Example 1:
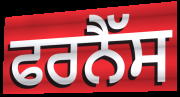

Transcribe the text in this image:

ਫਰਨੈੱਸ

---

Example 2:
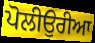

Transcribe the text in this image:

ਪੋਲੀਉਰੀਆ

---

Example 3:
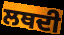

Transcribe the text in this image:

ਲਥਦੀ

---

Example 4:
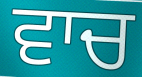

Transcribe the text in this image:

ਵਾਚ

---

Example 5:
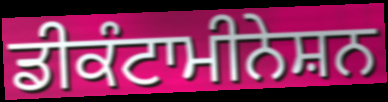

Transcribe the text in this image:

ਡੀਕੰਟਾਮੀਨੇਸ਼ਨ